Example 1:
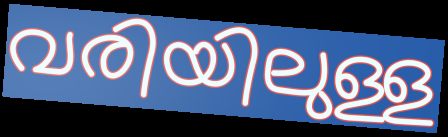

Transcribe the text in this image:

വരിയിലുള്ള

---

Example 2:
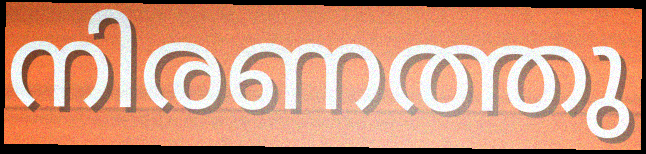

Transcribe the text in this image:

നിരണത്തു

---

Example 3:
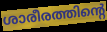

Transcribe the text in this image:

ശാരീരത്തിന്റെ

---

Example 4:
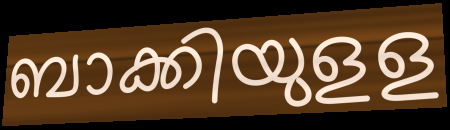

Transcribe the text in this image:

ബാക്കിയുളള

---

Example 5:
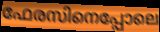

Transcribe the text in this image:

ഫേരസിനെപ്പോലെ